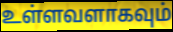
உள்ளவளாகவும்